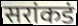
सरांकडं